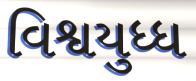
વિશ્વયુધ્ધ